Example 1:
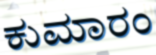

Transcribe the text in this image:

ಕುಮಾರಂ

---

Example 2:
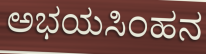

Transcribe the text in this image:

ಅಭಯಸಿಂಹನ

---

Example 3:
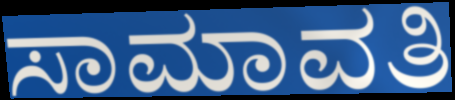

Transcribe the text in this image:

ಸಾಮಾವತಿ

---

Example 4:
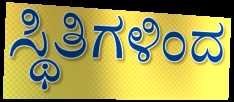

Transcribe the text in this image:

ಸ್ಥಿತಿಗಳಿಂದ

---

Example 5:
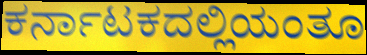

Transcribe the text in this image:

ಕರ್ನಾಟಕದಲ್ಲಿಯಂತೂ